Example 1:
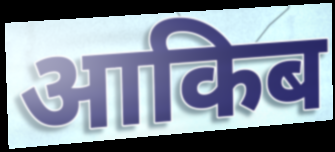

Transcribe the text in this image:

आकिब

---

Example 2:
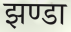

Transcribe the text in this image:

झण्डा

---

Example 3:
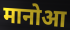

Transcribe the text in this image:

मानोआ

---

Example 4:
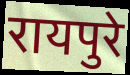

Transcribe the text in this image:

रायपुरे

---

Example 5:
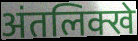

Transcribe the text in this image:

अंतलिक्खे